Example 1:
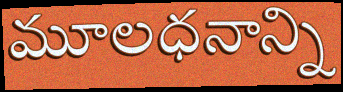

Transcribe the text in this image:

మూలధనాన్ని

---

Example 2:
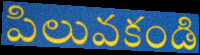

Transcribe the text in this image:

పిలువకండి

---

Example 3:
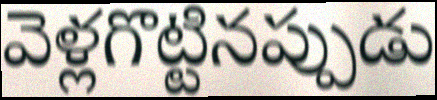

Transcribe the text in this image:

వెళ్లగొట్టినప్పుడు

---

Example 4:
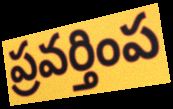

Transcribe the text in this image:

ప్రవర్తింప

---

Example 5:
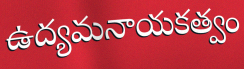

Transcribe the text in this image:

ఉద్యమనాయకత్వం